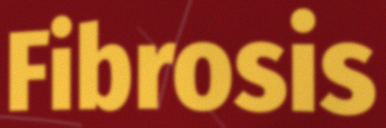
Fibrosis